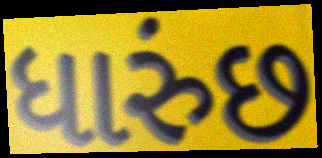
ધારુંછ